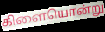
கிளையொன்று